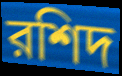
রশিদ